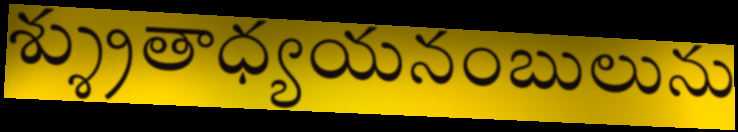
శ్శ్రుతాధ్యయనంబులును